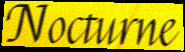
Nocturne